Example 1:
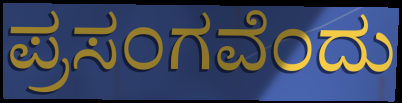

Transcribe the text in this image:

ಪ್ರಸಂಗವೆಂದು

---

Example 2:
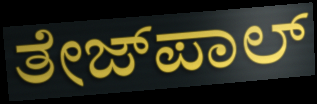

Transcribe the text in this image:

ತೇಜ್‌ಪಾಲ್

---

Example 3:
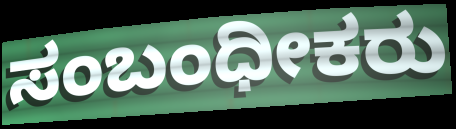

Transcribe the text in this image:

ಸಂಬಂಧೀಕರು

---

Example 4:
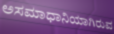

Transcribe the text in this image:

ಅಸಮಾಧಾನಿಯಾಗಿರುವ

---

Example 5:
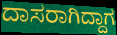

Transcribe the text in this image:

ದಾಸರಾಗಿದ್ದಾಗ